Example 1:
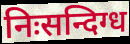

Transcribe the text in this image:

निःसन्दिग्ध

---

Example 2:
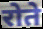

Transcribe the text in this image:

रोते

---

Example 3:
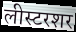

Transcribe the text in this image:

लीस्टरशर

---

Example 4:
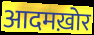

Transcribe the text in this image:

आदमख़ोर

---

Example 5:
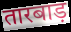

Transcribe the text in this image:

तारबाड़